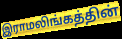
இராமலிங்கத்தின்